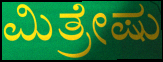
ಮಿತ್ರೇಷು